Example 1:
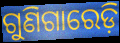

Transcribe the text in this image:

ଗୁଣିଗାରେଡ଼ି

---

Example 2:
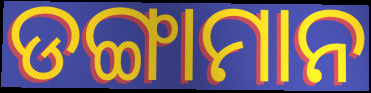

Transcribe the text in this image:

ଡଙ୍ଗାମାନ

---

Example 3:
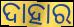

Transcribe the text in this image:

ଦାହାର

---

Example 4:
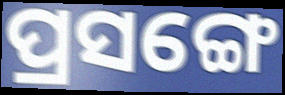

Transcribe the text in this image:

ପ୍ରସଙ୍ଗେ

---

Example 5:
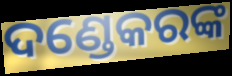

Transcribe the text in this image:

ଦଣ୍ଡେକରଙ୍କ